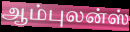
ஆம்புலன்ஸ்